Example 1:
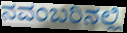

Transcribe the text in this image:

ನವಂಬರಿನಲ್ಲಿ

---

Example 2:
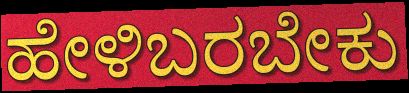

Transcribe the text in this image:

ಹೇಳಿಬರಬೇಕು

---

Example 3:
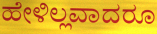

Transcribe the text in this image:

ಹೇಳಿಲ್ಲವಾದರೂ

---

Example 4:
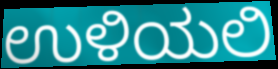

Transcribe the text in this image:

ಉಳಿಯಲಿ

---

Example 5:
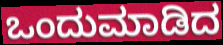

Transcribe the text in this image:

ಒಂದುಮಾಡಿದ